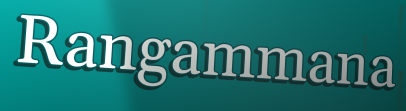
Rangammana